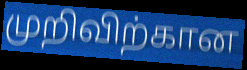
முறிவிற்கான